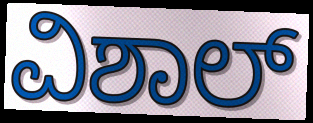
ವಿಶಾಲ್